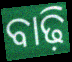
ବାଢ଼ି